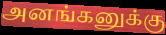
அனங்கனுக்கு